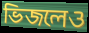
ভিজলেও